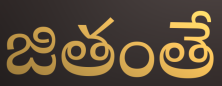
జితంతే